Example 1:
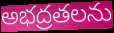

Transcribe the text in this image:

అభద్రతలను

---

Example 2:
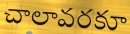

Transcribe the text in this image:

చాలావరకూ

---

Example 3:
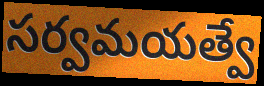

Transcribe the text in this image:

సర్వమయత్వే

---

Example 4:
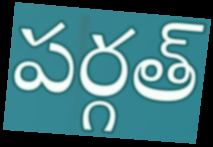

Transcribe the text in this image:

పర్గత్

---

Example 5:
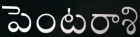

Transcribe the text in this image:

పెంటరాశి